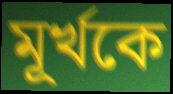
মূর্খকে